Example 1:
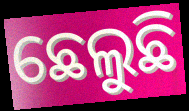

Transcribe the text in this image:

ଛେଲୁଛି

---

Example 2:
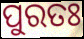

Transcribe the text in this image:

ପୁରତଃ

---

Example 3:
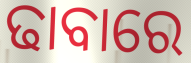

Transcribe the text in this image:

ଢାବାରେ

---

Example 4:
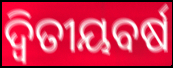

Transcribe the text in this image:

ଦ୍ୱିତୀୟବର୍ଷ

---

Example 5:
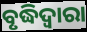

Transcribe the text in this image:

ବୃଦ୍ଧିଦ୍ୱାରା